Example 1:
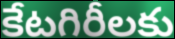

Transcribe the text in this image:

కేటగిరీలకు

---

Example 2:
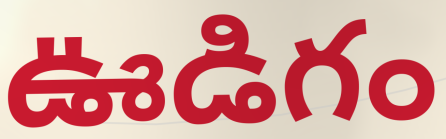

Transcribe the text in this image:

ఊడిగం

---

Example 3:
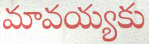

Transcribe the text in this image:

మావయ్యకు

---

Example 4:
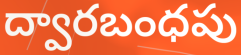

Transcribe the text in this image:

ద్వారబంధపు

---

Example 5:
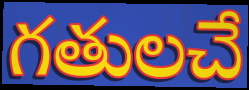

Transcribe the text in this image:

గతులచే